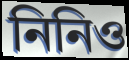
নিনিও